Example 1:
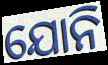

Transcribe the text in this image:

ଯୋନି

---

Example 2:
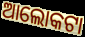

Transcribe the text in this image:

ଆଲୋକଟା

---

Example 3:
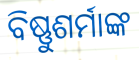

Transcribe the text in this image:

ବିଷ୍ଣୁଶର୍ମାଙ୍କ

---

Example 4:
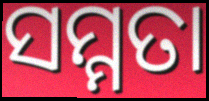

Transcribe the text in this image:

ସମ୍ମତା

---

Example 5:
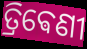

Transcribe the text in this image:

ତ୍ରିଵେଣୀ